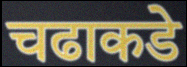
चढाकडे